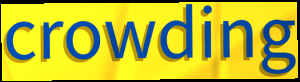
crowding